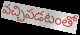
వచ్చిపడటంతో